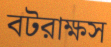
বটরাক্ষস